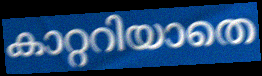
കാറ്ററിയാതെ